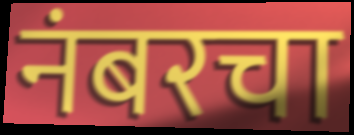
नंबरचा